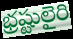
భ్రష్టులైరి